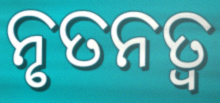
ନୃତନତ୍ୱ